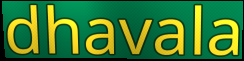
dhavala